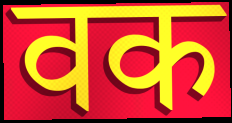
वक